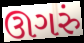
ઊગરું